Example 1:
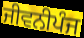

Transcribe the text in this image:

ਜੀਵਨੀਪੰਜ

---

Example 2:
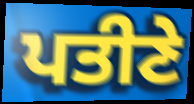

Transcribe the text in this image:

ਪਤੀਣੇ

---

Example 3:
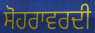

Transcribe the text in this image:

ਸੋਹਰਾਵਰਦੀ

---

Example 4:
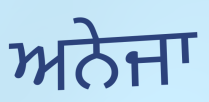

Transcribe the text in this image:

ਅਨੇਜਾ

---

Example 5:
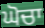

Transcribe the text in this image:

ਘੋਚਾ